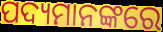
ପଦ୍ୟମାନଙ୍କରେ